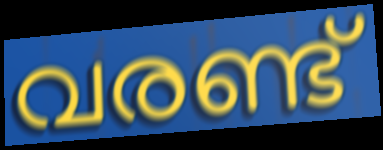
വരണ്ട്